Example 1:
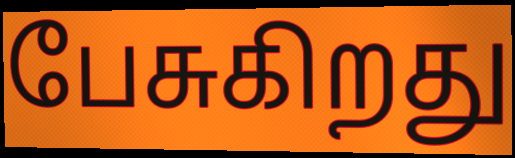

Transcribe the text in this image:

பேசுகிறது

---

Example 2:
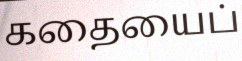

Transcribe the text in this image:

கதையைப்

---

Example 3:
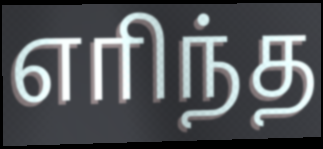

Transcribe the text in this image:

எரிந்த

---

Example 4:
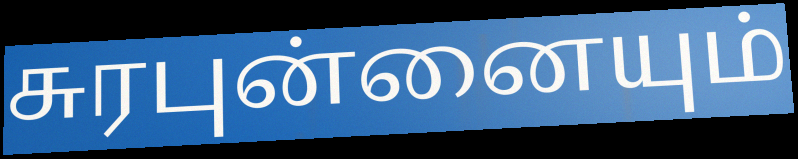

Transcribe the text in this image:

சுரபுன்னையும்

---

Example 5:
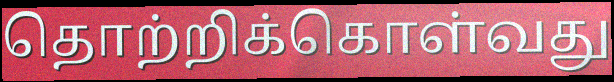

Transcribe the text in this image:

தொற்றிக்கொள்வது